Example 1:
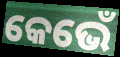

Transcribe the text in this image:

କେଭେଁ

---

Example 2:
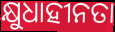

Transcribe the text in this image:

କ୍ଷୁଧାହୀନତା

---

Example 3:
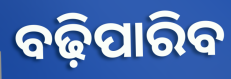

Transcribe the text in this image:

ବଢ଼ିପାରିବ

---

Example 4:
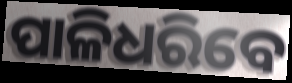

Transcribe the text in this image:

ପାଳିଧରିବେ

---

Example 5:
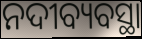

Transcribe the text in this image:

ନଦୀବ୍ୟବସ୍ଥା